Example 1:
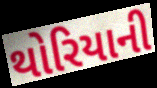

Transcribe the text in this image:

થોરિયાની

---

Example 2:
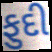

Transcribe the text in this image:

ફુદી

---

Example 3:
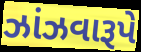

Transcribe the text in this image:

ઝાંઝવારૂપે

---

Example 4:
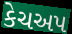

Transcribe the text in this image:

કેચઅપ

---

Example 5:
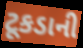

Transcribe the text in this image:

ટૂકડાની